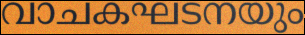
വാചകഘടനയും